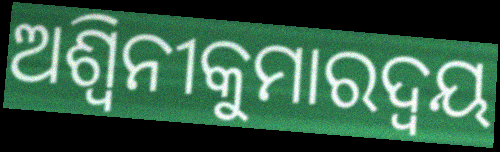
ଅଶ୍ୱିନୀକୁମାରଦ୍ୱୟ